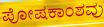
ಪೋಷಕಾಂಶವು